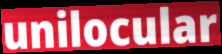
unilocular